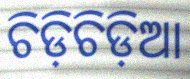
ଚିଡ଼ିଚିଡ଼ିଆ